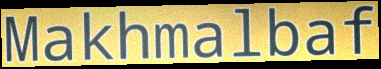
Makhmalbaf